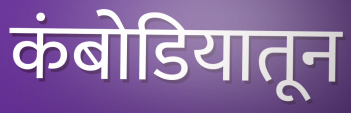
कंबोडियातून